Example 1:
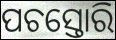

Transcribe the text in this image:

ପଚସ୍ତୋରି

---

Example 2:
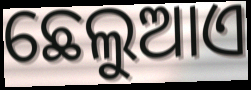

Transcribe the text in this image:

ଛେଲୁଆଏ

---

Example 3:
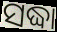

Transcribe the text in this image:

ସଦ୍ଧା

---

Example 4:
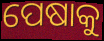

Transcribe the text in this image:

ପେଷାକୁ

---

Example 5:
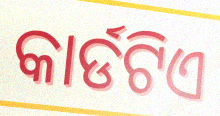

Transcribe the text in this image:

କାର୍ଡଟିଏ